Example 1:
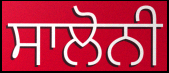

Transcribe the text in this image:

ਸਾਲੋਨੀ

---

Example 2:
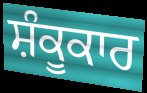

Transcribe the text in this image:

ਸ਼ੰਕੂਕਾਰ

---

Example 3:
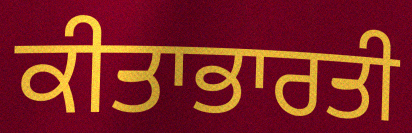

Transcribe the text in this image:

ਕੀਤਾਭਾਰਤੀ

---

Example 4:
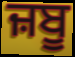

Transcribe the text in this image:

ਜ਼ਬੂ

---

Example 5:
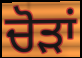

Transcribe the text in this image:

ਚੋੜਾਂ